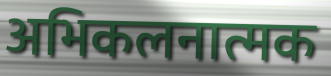
अभिकलनात्मक